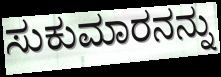
ಸುಕುಮಾರನನ್ನು